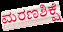
ಮರಣಶಿಕ್ಷೆ